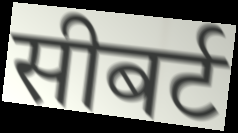
सीबर्ट